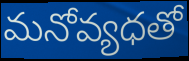
మనోవ్యధతో